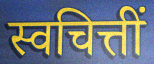
स्वचित्तीं